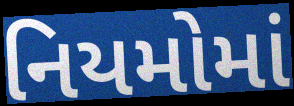
નિયમોમાં